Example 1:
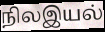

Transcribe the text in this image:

நிலஇயல்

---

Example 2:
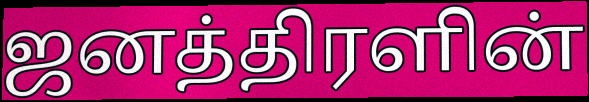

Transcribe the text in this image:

ஜனத்திரளின்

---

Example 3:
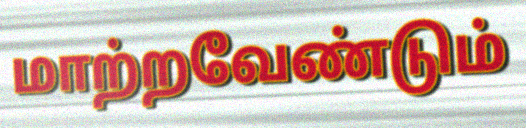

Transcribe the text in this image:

மாற்றவேண்டும்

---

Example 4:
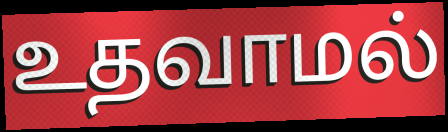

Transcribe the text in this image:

உதவாமல்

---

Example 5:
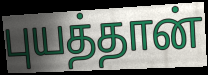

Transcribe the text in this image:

புயத்தான்